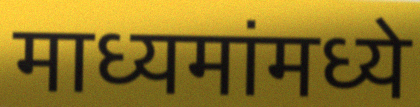
माध्यमांमध्ये